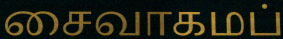
சைவாகமப்